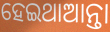
ହେଇଥାଆନ୍ତା